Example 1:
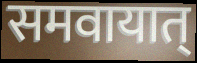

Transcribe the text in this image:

समवायात्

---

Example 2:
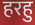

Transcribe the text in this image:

हरहु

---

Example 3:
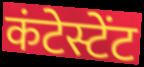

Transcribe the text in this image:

कंटेस्टेंट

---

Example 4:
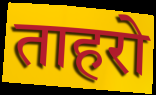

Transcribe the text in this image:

ताहरो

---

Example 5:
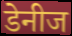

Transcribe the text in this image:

डेनीज